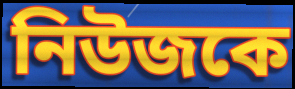
নিউজকে